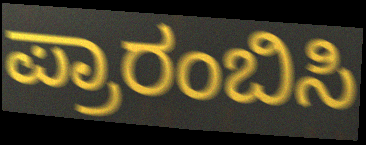
ಪ್ರಾರಂಬಿಸಿ